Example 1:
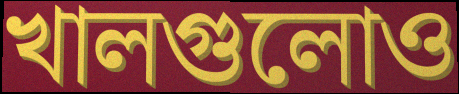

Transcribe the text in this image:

খালগুলোও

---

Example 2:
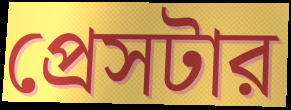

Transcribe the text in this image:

প্রেসটার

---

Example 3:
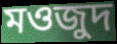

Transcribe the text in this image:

মওজুদ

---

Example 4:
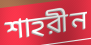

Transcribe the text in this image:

শাহরীন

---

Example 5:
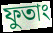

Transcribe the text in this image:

ফুতাং